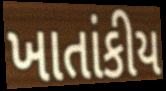
ખાતાંકીય